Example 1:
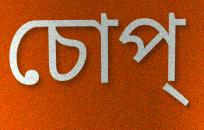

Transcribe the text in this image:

চোপ্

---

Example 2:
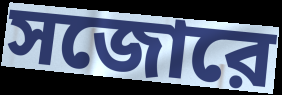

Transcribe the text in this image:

সজোরে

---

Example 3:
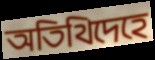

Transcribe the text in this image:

অতিথিদেহে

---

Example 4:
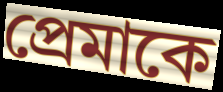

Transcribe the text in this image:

প্রেমাকে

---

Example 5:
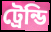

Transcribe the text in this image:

ট্রেন্ডি